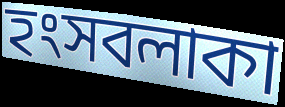
হংসবলাকা